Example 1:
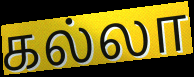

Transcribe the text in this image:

கல்லா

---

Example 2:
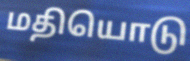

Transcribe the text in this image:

மதியொடு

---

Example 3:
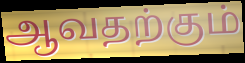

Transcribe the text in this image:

ஆவதற்கும்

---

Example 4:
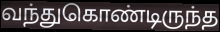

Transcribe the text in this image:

வந்துகொண்டிருந்த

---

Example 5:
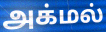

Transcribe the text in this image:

அக்மல்